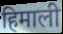
हिमाली